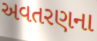
અવતરણના